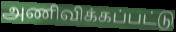
அணிவிக்கப்பட்டு